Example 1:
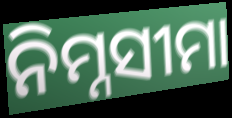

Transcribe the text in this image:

ନିମ୍ନସୀମା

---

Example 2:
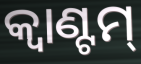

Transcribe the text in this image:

କ୍ଵାଣ୍ଟମ୍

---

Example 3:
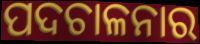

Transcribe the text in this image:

ପଦଚାଳନାର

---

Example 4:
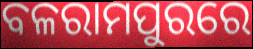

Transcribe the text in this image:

ବଳରାମପୁରରେ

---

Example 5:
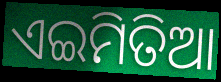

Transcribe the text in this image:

ଏଇମିତିଆ